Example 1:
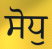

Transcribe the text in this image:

ਸੋਧੁ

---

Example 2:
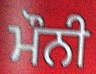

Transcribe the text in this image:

ਮੌਨੀ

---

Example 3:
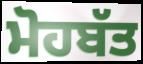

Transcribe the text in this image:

ਮੋਹਬੱਤ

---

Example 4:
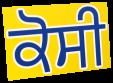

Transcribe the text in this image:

ਕੋਸੀ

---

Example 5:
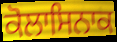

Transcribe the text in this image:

ਕੋਲਾਸਿਨਾਕ